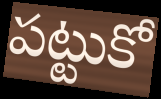
పట్టుకో